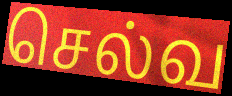
செல்வ